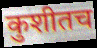
कुशीतच